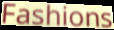
Fashions